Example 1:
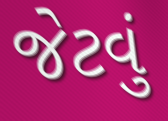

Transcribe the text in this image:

જેટવું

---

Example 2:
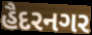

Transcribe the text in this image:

હૈદરનગર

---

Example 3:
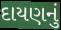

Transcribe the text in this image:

દાયણનું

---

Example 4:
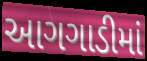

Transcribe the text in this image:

આગગાડીમાં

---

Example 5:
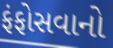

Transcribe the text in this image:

ફંફોસવાનો